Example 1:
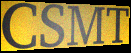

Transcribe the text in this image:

CSMT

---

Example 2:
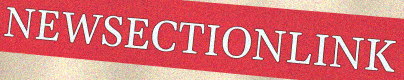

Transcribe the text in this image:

NEWSECTIONLINK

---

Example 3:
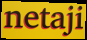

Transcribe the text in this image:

netaji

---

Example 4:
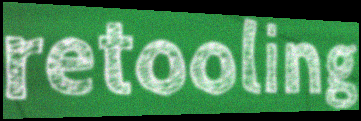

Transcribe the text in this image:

retooling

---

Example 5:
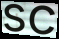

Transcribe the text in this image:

sc